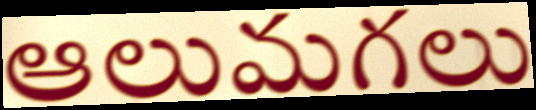
ఆలుమగలు